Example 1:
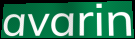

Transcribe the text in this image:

avarin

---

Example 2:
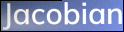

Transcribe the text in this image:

Jacobian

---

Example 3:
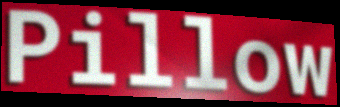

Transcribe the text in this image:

Pillow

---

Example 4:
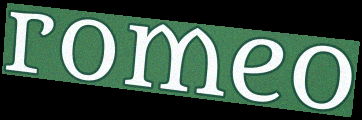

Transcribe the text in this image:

romeo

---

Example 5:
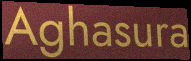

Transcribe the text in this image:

Aghasura